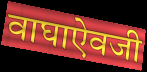
वाघाऐवजी